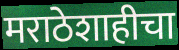
मराठेशाहीचा